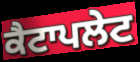
ਕੈਟਾਪਲੇਟ